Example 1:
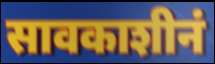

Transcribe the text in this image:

सावकाशीनं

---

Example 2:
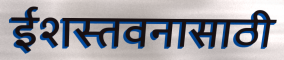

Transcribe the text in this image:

ईशस्तवनासाठी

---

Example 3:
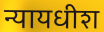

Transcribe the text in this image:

न्यायधीश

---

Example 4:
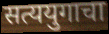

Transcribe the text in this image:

सत्ययुगाचा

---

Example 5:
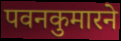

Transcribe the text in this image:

पवनकुमारने